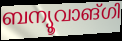
ബന്യൂവാങ്ഗി